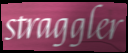
straggler